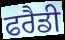
ਫਰੈਡੀ